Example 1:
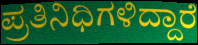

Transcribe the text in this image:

ಪ್ರತಿನಿಧಿಗಳಿದ್ದಾರೆ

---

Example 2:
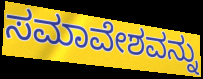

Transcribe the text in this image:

ಸಮಾವೇಶವನ್ನು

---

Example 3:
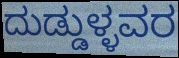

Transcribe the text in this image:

ದುಡ್ಡುಳ್ಳವರ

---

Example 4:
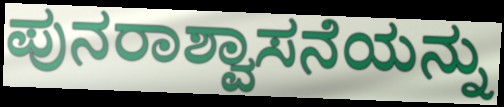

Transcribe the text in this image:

ಪುನರಾಶ್ವಾಸನೆಯನ್ನು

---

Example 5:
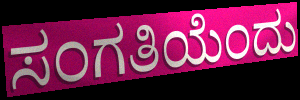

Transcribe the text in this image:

ಸಂಗತಿಯೆಂದು